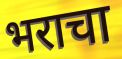
भराचा